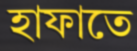
হাফাতে